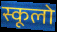
स्कूलो